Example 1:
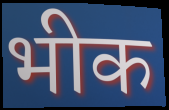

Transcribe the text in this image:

भीक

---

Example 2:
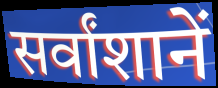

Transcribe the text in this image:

सर्वांशानें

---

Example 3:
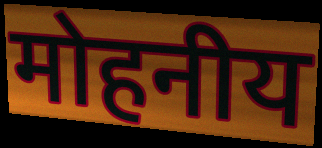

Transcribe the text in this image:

मोहनीय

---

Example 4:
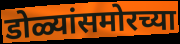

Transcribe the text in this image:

डोळ्यांसमोरच्या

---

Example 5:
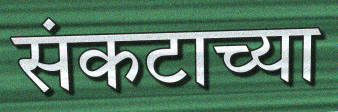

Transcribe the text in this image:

संकटाच्या